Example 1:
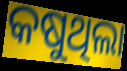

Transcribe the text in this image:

କଷୁଥିଲା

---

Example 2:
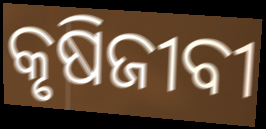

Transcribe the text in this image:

କୃଷିଜୀବୀ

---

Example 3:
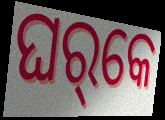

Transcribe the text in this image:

ଘର୍‌କେ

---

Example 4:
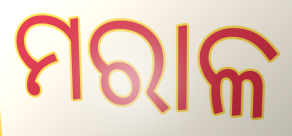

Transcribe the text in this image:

ମରାଳ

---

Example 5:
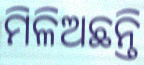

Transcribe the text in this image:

ମିଳିଅଛନ୍ତି